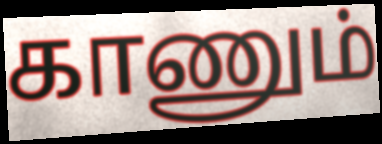
காணும்